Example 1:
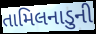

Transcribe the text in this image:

તામિલનાડુની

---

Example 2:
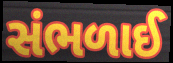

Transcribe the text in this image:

સંભળાઈ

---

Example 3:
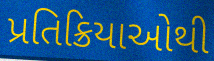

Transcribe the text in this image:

પ્રતિક્રિયાઓથી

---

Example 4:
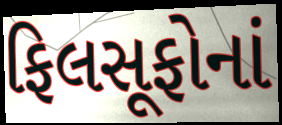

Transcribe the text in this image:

ફિલસૂફોનાં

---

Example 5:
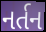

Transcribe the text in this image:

નર્તન